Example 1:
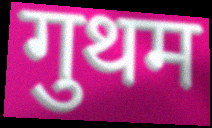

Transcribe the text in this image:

गुथम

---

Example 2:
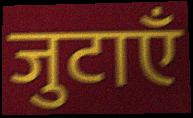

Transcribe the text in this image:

जुटाएँ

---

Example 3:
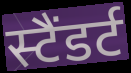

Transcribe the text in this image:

स्टैंडर्ट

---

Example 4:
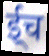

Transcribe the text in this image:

ई्च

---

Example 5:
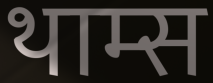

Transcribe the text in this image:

थाम्स